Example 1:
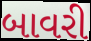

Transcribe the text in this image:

બાવરી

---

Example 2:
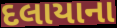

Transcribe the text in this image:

દલાયાના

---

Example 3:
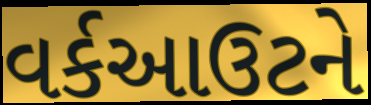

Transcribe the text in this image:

વર્કઆઉટને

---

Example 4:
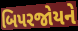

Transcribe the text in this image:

બિપરજોયને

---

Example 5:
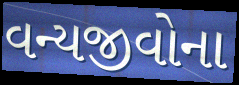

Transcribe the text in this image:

વન્યજીવોના